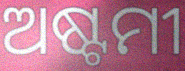
ଅଷ୍ଟମୀ